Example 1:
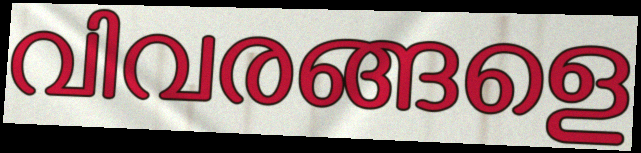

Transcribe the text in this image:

വിവരങ്ങളെ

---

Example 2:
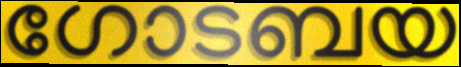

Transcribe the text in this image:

ഗോടബയ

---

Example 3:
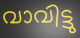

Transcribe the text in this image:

വാവിട്ടു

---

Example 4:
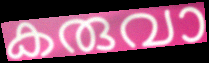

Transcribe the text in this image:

കരുവാ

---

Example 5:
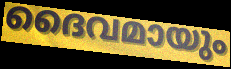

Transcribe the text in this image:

ദൈവമായും